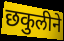
छकुलीने